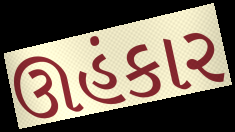
ઊહંકાર